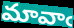
మావాఁ